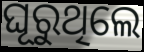
ଘୂରୁଥିଲେ